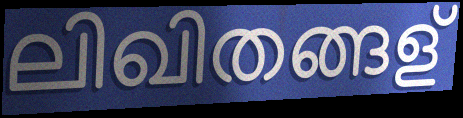
ലിഖിതങ്ങള്